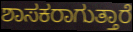
ಶಾಸಕರಾಗುತ್ತಾರೆ